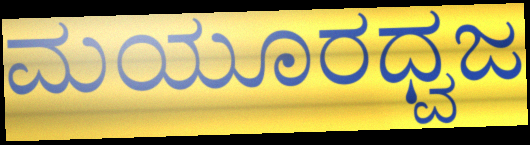
ಮಯೂರಧ್ವಜ